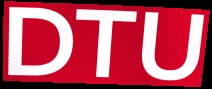
DTU